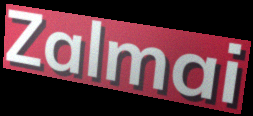
Zalmai